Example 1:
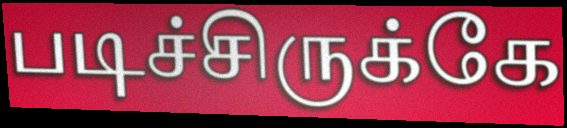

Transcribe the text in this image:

படிச்சிருக்கே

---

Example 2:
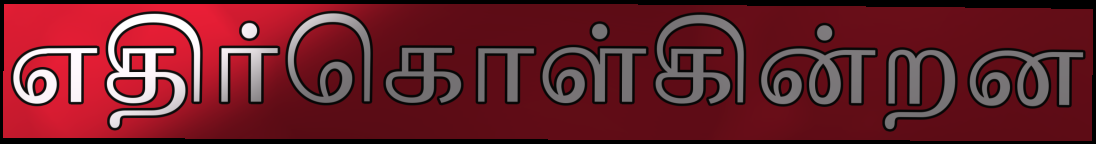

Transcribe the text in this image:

எதிர்கொள்கின்றன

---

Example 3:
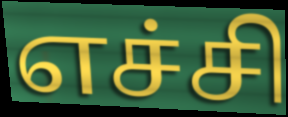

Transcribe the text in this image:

எச்சி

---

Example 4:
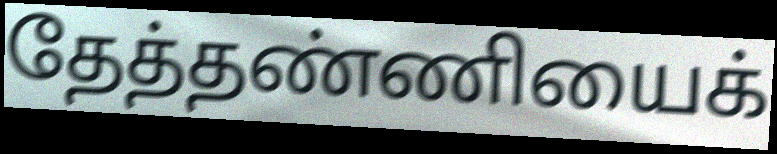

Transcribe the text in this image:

தேத்தண்ணியைக்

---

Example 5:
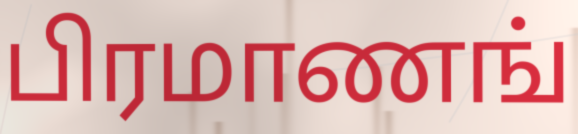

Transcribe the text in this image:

பிரமாணங்